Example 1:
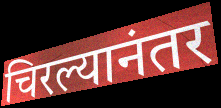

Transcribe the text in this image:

चिरल्यानंतर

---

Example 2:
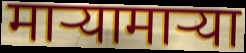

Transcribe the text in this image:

माऱ्यामाऱ्या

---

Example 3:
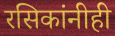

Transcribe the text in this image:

रसिकांनीही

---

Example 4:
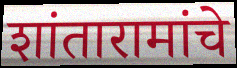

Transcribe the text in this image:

शांतारामांचे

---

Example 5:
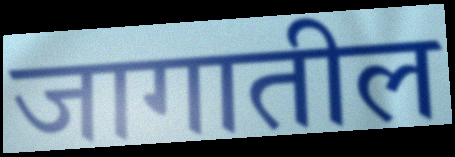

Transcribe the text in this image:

जागातील